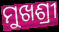
ମୁଖଶ୍ରୀ